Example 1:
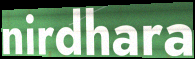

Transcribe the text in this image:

nirdhara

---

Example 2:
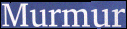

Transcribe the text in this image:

Murmur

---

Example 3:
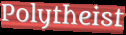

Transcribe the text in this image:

Polytheist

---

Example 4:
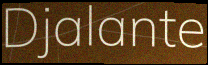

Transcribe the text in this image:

Djalante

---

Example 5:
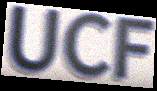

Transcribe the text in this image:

UCF